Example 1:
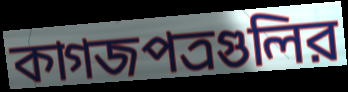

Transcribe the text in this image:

কাগজপত্রগুলির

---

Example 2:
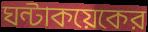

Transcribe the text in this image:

ঘন্টাকয়েকের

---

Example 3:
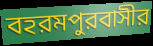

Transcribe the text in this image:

বহরমপুরবাসীর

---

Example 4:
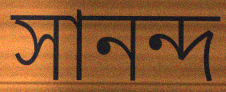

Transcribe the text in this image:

সানন্দ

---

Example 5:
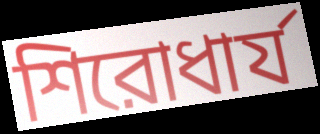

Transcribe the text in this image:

শিরোধার্য